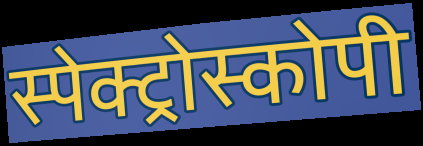
स्पेक्ट्रोस्कोपी